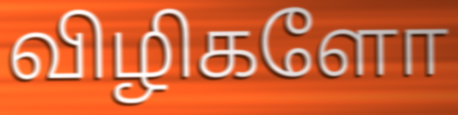
விழிகளோ